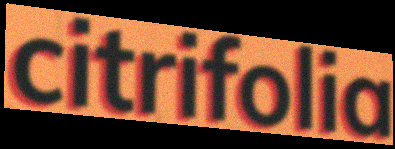
citrifolia